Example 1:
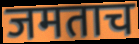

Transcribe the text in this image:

जमताच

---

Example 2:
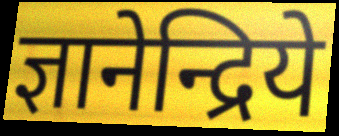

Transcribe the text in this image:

ज्ञानेन्द्रिये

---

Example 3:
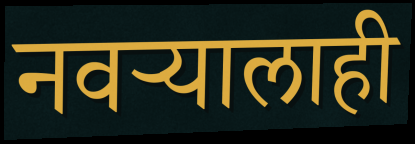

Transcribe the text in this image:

नवऱ्यालाही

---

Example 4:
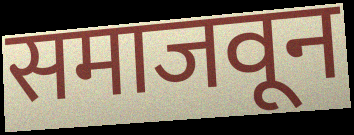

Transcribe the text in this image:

समाजवून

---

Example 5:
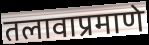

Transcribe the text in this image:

तलावाप्रमाणे